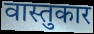
वास्तुकार